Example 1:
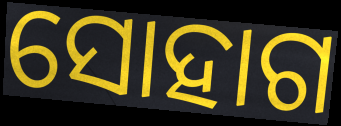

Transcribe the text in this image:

ସୋହାଗ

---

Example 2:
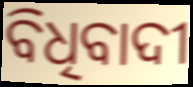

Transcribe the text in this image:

ବିଧିବାଦୀ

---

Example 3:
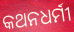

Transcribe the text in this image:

କଥନଧର୍ମୀ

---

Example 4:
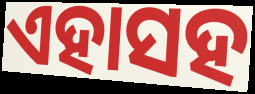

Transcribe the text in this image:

ଏହାସହ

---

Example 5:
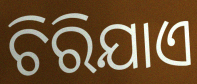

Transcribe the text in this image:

ଚିରିଯାଏ